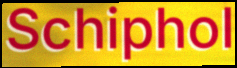
Schiphol